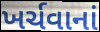
ખર્ચવાનાં